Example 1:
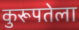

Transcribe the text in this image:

कुरूपतेला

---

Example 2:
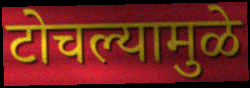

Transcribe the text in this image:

टोचल्यामुळे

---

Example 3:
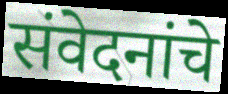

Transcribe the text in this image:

संवेदनांचे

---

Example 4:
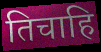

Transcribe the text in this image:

तिचाहि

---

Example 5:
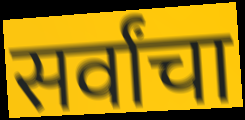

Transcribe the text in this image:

सर्वांचा